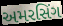
અમરસિંગ